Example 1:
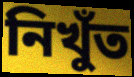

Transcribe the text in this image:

নিখুঁত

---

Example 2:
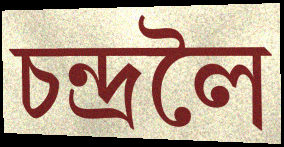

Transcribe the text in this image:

চন্দ্ৰলৈ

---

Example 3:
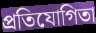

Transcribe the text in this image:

প্ৰতিযোগিতা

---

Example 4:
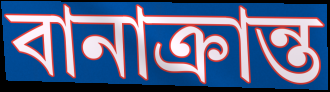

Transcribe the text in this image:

বানাক্ৰান্ত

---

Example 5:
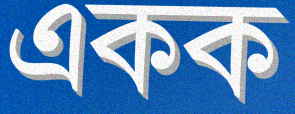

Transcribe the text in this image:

একক